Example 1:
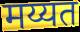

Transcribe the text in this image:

मय्यत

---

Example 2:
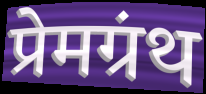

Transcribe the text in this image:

प्रेमग्रंथ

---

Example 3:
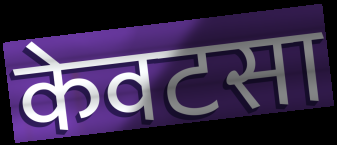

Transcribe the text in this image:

केवटसा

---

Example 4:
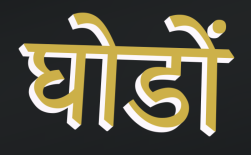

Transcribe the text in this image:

घोडों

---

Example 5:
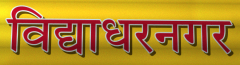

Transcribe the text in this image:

विद्याधरनगर